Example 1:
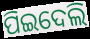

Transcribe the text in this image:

ପିଇଦେଲି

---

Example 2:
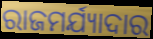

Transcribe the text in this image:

ରାଜମର୍ଯ୍ୟାଦାର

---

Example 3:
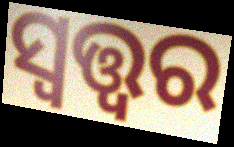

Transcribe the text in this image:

ସ୍ୱତ୍ତ୍ୱର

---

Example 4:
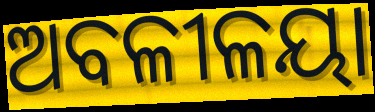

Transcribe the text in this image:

ଅବଳୀଳୟା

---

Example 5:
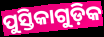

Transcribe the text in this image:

ପୁସ୍ତିକାଗୁଡ଼ିକ